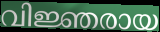
വിജ്ഞരായ